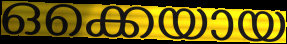
ഒക്കെയായ